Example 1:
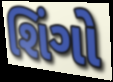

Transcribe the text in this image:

શિંગો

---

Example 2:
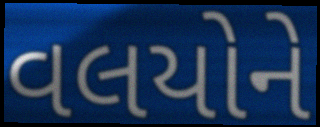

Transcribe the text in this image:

વલયોને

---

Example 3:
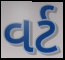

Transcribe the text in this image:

વર્ટ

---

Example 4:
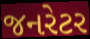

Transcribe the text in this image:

જનરેટર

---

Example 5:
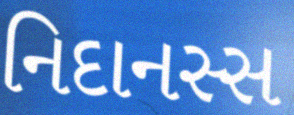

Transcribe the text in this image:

નિદાનસ્સ